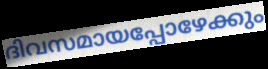
ദിവസമായപ്പോഴേക്കും